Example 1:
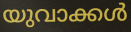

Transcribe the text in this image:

യുവാക്കൾ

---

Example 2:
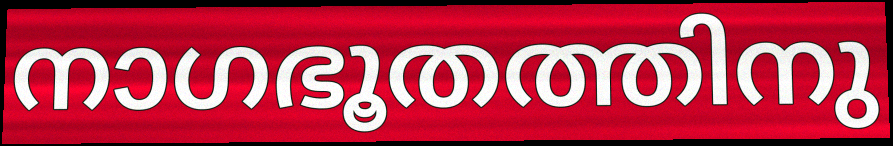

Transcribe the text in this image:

നാഗഭൂതത്തിനു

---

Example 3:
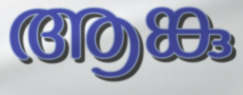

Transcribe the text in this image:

ആങ്കു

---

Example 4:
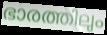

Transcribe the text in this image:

ഭാരത്തിലും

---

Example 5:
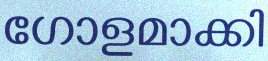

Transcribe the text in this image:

ഗോളമാക്കി